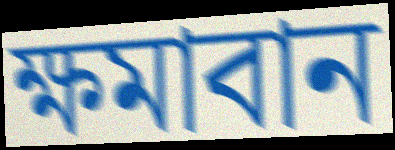
ক্ষমাবান